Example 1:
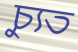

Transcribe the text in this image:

চ্যুত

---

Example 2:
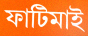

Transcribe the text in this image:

ফাটিমাই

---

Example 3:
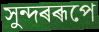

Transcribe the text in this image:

সুন্দৰৰূপে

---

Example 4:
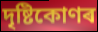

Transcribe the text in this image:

দৃষ্টিকোণৰ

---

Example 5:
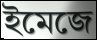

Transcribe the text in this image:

ইমেজে